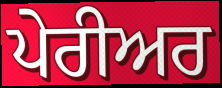
ਪੇਰੀਅਰ